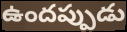
ఉందప్పుడు